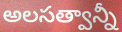
అలసత్వాన్నీ